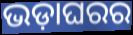
ଭଡ଼ାଘରର